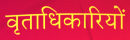
वृताधिकारियों